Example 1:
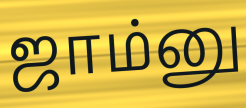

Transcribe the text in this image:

ஜாம்னு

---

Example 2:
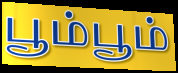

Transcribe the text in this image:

பூம்பூம்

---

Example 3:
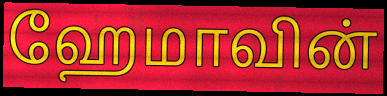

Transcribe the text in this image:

ஹேமாவின்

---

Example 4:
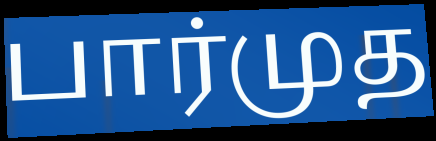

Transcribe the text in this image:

பார்முத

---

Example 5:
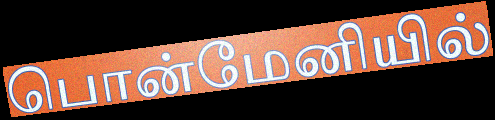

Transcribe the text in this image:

பொன்மேனியில்